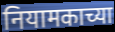
नियामकाच्या